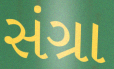
સંગ્રા